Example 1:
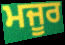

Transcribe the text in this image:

ਮਜੂਰ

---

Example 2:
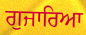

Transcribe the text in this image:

ਗੁਜਾਰਿਆ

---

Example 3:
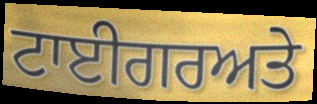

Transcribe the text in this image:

ਟਾਈਗਰਅਤੇ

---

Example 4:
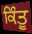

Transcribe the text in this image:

ਕਿੰਤੂ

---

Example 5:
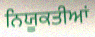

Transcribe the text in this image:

ਨਿਯੂਕਤੀਆਂ